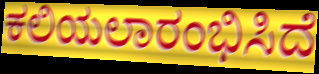
ಕಲಿಯಲಾರಂಭಿಸಿದೆ